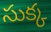
సుక్క